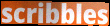
scribbles